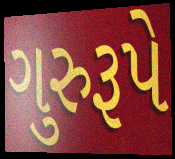
ગુરુરૂપે